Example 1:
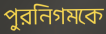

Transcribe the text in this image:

পুরনিগমকে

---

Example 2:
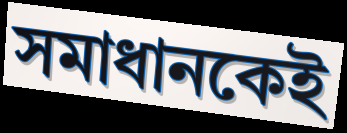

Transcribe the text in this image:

সমাধানকেই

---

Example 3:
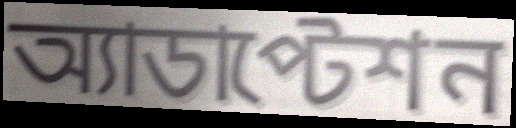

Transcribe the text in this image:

অ্যাডাপ্টেশন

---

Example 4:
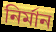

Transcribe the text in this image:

নির্মান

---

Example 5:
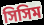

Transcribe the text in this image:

সিসিম